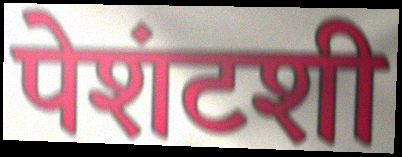
पेशंटशी